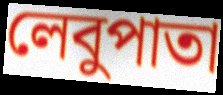
লেবুপাতা